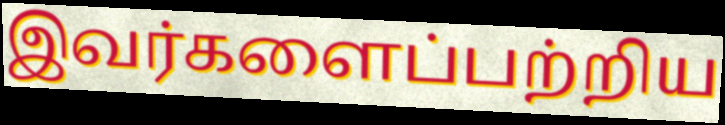
இவர்களைப்பற்றிய